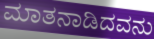
ಮಾತನಾಡಿದವನು